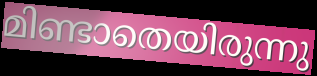
മിണ്ടാതെയിരുന്നു